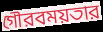
গৌরবময়তার